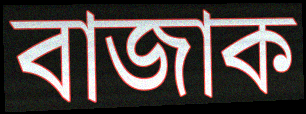
বাজাক